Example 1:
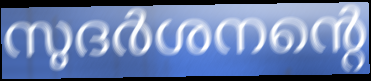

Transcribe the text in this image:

സുദർശനന്റെ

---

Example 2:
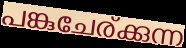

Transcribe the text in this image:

പങ്കുചേര്ക്കുന്ന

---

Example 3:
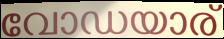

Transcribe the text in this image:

വോഡയാര്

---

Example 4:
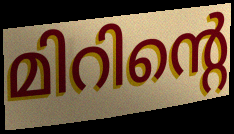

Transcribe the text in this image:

മിറിന്റെ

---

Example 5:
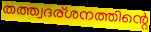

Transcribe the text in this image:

തത്ത്വദര്ശനത്തിന്റെ